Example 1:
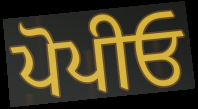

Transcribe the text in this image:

ਪੋਪੀਓ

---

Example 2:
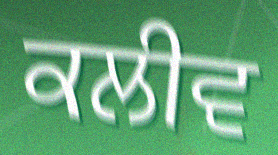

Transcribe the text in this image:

ਕਲੀਵ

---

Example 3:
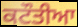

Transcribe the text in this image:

ਕਟੌਤੀਆ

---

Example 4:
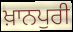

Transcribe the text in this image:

ਖ਼ਾਨਪੁਰੀ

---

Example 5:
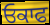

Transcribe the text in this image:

ਓਕਾਫ